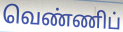
வெண்ணிப்